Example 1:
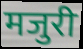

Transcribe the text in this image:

मजुरी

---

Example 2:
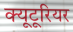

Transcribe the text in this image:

क्यूटूरियर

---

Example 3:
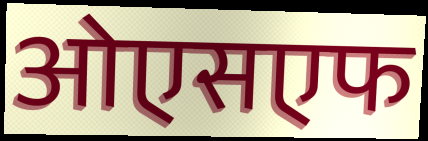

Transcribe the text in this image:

ओएसएफ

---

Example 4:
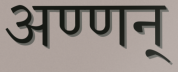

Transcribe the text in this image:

अण्णन्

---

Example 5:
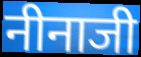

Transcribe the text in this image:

नीनाजी